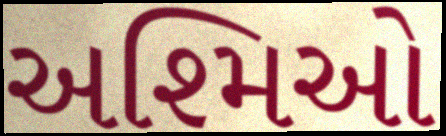
અશ્મિઓ